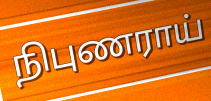
நிபுணராய்